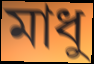
মাধু